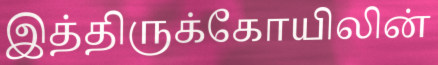
இத்திருக்கோயிலின்